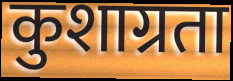
कुशाग्रता